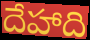
దేహాది